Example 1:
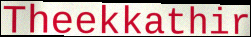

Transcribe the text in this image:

Theekkathir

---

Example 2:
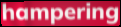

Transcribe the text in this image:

hampering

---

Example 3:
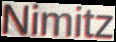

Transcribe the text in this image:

Nimitz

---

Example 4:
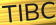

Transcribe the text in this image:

TIBC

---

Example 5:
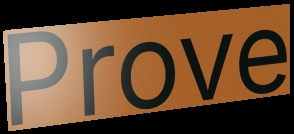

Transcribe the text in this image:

Prove